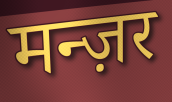
मन्ज़र